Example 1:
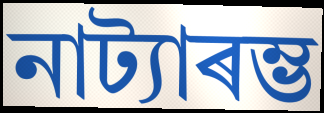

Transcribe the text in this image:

নাট্যাৰম্ভ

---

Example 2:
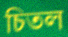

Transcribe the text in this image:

চিতল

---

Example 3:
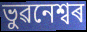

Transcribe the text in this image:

ভুৱনেশ্বৰ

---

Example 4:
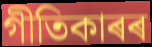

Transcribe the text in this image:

গীতিকাৰৰ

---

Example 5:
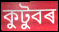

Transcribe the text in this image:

কুটুবৰ